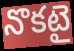
నొకటై